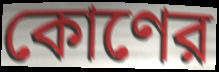
কোণের